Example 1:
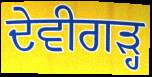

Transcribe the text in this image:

ਦੇਵੀਗੜ੍ਹ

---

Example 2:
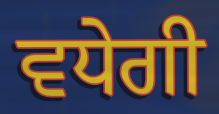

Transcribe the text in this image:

ਵਧੇਗੀ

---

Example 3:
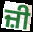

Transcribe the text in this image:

ਜ਼ੀ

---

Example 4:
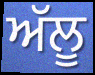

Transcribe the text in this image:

ਅੱਲੂ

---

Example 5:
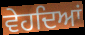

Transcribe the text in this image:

ਵੇਹਦਿਆਂ